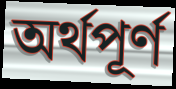
অর্থপূর্ণ